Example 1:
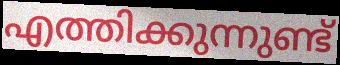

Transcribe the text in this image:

എത്തിക്കുന്നുണ്ട്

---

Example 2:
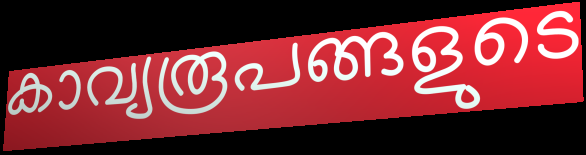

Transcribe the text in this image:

കാവ്യരൂപങ്ങളുടെ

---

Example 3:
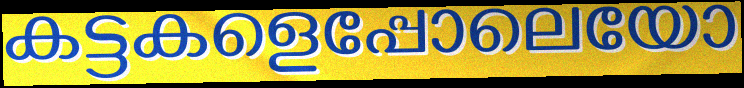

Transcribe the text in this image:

കട്ടകളെപ്പോലെയോ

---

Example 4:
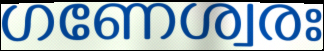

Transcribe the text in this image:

ഗണേശ്വരഃ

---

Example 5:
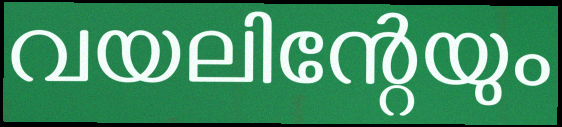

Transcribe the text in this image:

വയലിന്റേയും